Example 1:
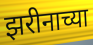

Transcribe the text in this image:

झरीनाच्या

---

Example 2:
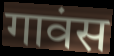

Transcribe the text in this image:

गावंस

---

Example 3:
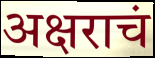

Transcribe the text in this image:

अक्षराचं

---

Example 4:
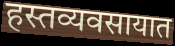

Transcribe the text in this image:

हस्तव्यवसायात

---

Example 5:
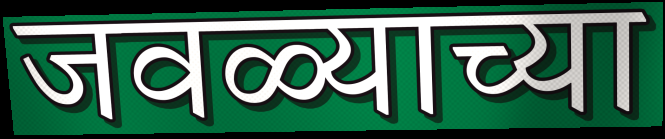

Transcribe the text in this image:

जवळ्याच्या